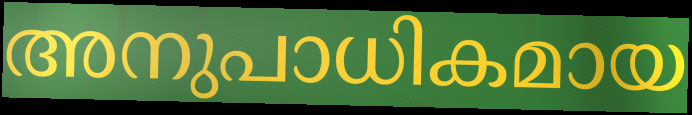
അനുപാധികമായ